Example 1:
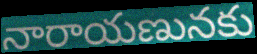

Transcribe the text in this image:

నారాయణునకు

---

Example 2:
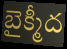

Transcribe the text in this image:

బైక్మీద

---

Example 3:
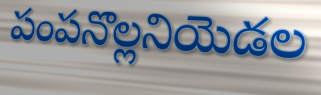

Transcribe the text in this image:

పంపనొల్లనియెడల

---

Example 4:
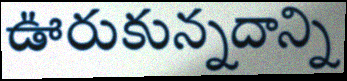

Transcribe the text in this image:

ఊరుకున్నదాన్ని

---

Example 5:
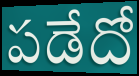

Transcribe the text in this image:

పడేదో